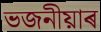
ভজনীয়াৰ